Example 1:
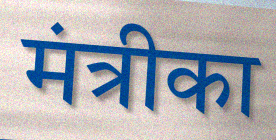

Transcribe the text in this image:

मंत्रीका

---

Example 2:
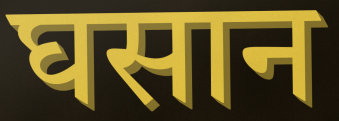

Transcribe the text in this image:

घसान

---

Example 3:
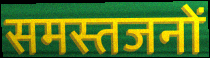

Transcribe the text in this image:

समस्तजनों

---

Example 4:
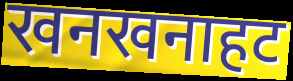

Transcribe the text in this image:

खनखनाहट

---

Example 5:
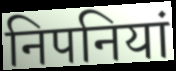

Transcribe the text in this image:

निपनियां